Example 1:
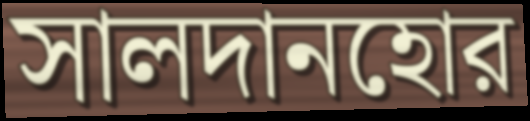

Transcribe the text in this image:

সালদানহোর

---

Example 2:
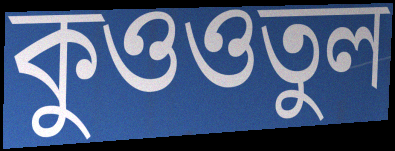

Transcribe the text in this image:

কুওওতুল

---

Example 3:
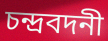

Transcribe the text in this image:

চন্দ্রবদনী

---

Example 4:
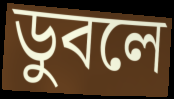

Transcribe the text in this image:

ডুবলে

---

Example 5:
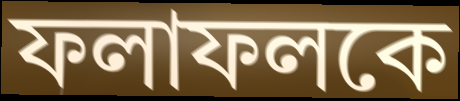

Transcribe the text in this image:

ফলাফলকে